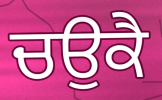
ਚਉਕੈ